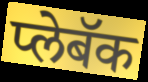
प्लेबॅक